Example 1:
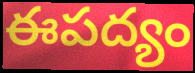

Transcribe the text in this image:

ఈపద్యం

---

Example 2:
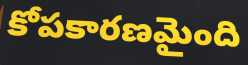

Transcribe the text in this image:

కోపకారణమైంది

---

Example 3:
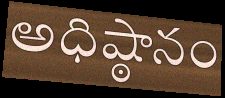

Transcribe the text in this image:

అధిష్ఠానం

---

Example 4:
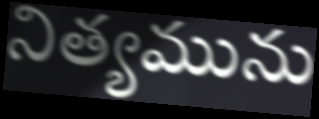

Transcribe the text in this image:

నిత్యమును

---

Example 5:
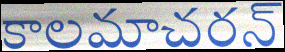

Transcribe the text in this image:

కాలమాచరన్